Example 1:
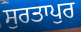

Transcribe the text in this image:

ਸੁਰਤਾਪੁਰ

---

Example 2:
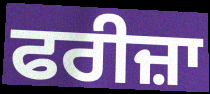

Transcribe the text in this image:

ਫਰੀਜ਼ਾ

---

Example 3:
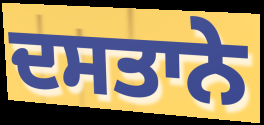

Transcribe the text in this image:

ਦਸਤਾਨੇ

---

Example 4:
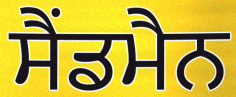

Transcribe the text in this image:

ਸੈਂਡਮੈਨ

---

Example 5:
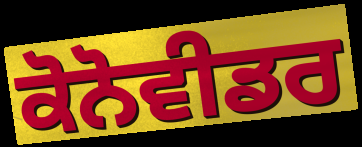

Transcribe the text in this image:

ਕੋਨੋਵੀਡਰ